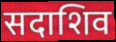
सदाशिव